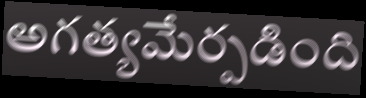
అగత్యమేర్పడింది